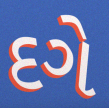
દગે